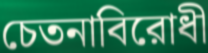
চেতনাবিরোধী